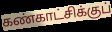
கண்காட்சிக்குப்